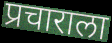
प्रचाराला